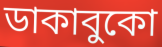
ডাকাবুকো